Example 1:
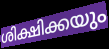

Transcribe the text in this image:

ശിക്ഷിക്കയും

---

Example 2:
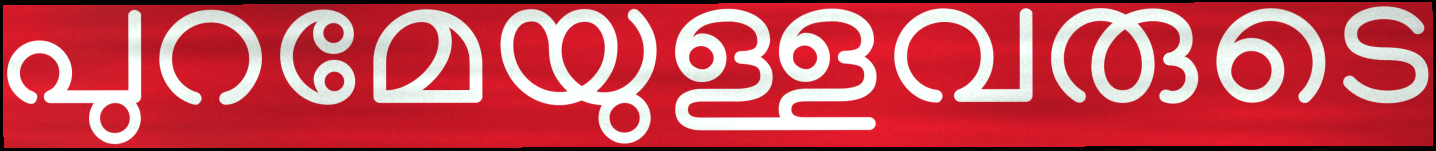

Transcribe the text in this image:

പുറമേയുള്ളവരുടെ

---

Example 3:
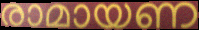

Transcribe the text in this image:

രാമായണ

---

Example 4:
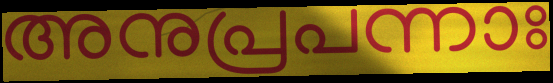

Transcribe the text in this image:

അനുപ്രപന്നാഃ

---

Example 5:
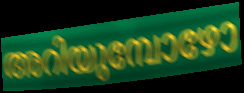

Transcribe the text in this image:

അറിയുമ്പോഴോ